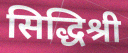
सिद्धिश्री